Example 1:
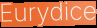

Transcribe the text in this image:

Eurydice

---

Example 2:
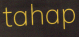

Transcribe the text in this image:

tahap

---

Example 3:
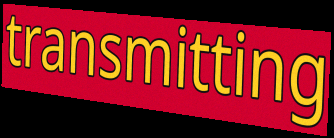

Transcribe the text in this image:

transmitting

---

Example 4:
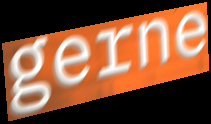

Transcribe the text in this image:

gerne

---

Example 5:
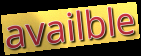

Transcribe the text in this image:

availble